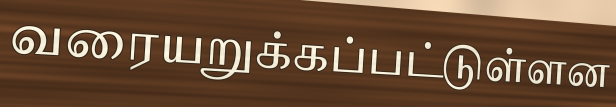
வரையறுக்கப்பட்டுள்ளன